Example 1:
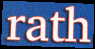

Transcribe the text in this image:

rath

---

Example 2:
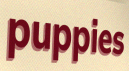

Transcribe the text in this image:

puppies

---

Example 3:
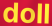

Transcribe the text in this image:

doll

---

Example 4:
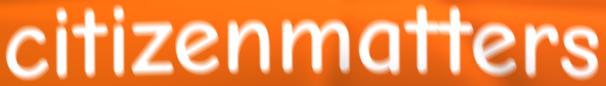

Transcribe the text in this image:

citizenmatters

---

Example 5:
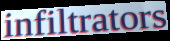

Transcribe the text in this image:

infiltrators